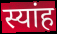
स्यांह